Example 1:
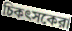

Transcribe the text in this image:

চিকৎসকেরা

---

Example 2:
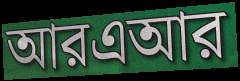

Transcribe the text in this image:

আরএআর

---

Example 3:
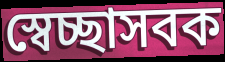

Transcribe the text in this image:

স্বেচ্ছাসবক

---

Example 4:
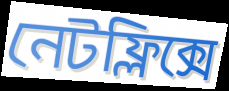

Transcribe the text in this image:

নেটফ্লিক্সে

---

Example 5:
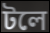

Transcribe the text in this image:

টলে